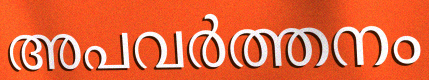
അപവർത്തനം